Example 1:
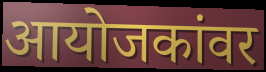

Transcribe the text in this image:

आयोजकांवर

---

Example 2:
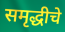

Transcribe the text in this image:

समृद्धीचे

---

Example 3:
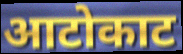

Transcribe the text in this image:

आटोकाट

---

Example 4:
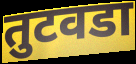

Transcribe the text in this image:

तुटवडा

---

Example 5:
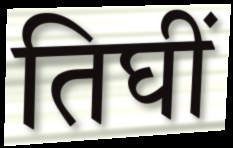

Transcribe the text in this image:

तिघीं